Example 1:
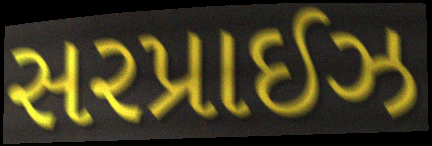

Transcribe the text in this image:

સરપ્રાઈઝ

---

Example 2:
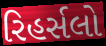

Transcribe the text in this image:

રિહર્સલો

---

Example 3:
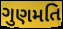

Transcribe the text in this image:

ગુણમતિ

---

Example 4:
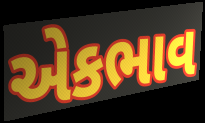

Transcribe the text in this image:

એકભાવ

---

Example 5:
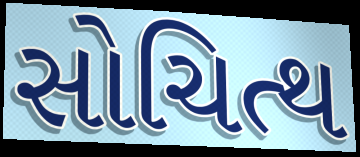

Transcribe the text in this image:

સોચિત્થ